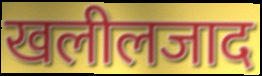
खलीलजाद